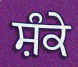
ਸ਼ੰਕੇ